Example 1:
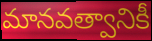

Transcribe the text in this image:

మానవత్వానికీ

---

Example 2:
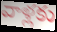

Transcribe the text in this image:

వాళ్లకు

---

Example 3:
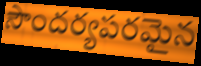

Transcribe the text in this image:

సౌందర్యపరమైన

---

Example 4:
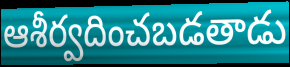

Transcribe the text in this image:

ఆశీర్వదించబడతాడు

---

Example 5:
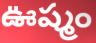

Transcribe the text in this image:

ఊష్మం